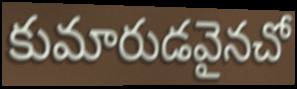
కుమారుడవైనచో